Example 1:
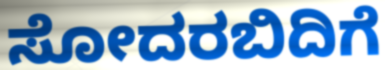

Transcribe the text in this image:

ಸೋದರಬಿದಿಗೆ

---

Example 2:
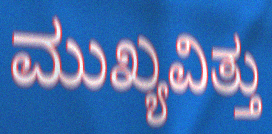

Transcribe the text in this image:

ಮುಖ್ಯವಿತ್ತು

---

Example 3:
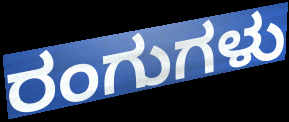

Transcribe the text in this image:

ರಂಗುಗಳು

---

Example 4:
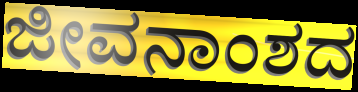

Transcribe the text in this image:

ಜೀವನಾಂಶದ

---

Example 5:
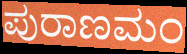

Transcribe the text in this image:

ಪುರಾಣಮಂ